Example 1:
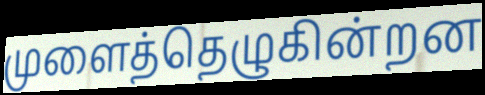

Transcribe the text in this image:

முளைத்தெழுகின்றன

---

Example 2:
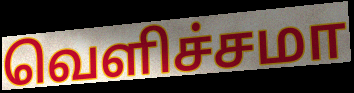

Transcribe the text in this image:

வெளிச்சமா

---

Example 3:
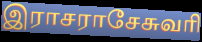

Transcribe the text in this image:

இராசராசேசுவரி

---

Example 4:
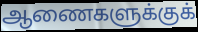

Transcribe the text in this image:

ஆணைகளுக்குக்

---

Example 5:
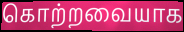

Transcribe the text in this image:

கொற்றவையாக